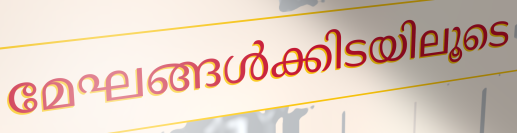
മേഘങ്ങൾക്കിടയിലൂടെ